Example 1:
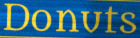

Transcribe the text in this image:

Donuts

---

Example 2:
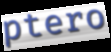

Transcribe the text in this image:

ptero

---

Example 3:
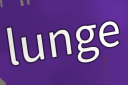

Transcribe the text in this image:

lunge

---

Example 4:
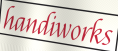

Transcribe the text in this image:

handiworks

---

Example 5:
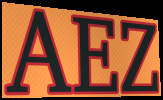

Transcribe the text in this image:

AEZ